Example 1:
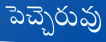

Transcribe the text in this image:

పెచ్చెరువు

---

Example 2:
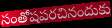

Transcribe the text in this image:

సంతోషపరచినందుకు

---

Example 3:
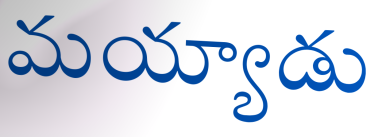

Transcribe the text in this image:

మయ్యాడు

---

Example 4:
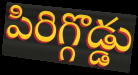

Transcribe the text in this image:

పిరిగ్గొడ్డు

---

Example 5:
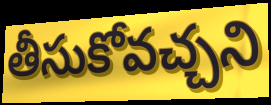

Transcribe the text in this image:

తీసుకోవచ్చని